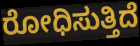
ರೋಧಿಸುತ್ತಿದೆ